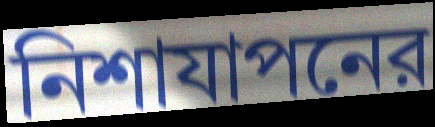
নিশাযাপনের